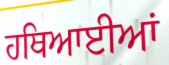
ਹਥਿਆਈਆਂ